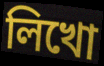
লিখো